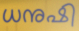
ധനുഷി